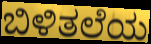
ಬಿಳಿತಲೆಯ